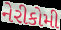
નેરીકોમી